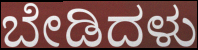
ಬೇಡಿದಳು